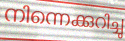
നിന്നെക്കുറിച്ചു